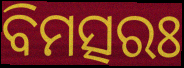
ବିମତ୍ସରଃ